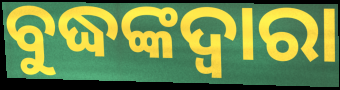
ବୁଦ୍ଧଙ୍କଦ୍ଵାରା